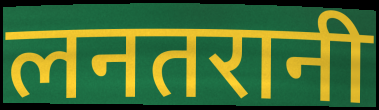
लनतरानी